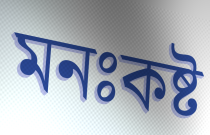
মনঃকষ্ট